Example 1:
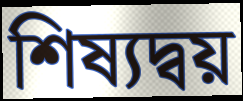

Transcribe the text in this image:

শিষ্যদ্বয়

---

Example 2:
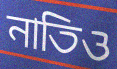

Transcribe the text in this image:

নাতিও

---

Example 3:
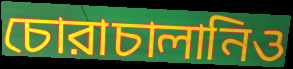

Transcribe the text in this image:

চোরাচালানিও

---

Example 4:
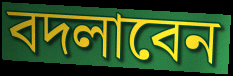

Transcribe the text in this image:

বদলাবেন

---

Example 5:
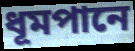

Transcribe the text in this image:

ধূমপানে